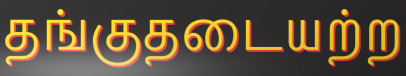
தங்குதடையற்ற